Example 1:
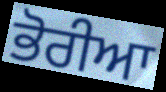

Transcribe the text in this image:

ਭੋਰੀਆ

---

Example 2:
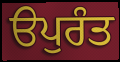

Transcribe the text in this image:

ੳਪੁਰੰਤ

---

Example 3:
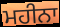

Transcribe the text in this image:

ਮਹੀਨਾ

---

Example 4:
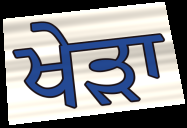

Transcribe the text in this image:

ਖੇੜਾ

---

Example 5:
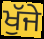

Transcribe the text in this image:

ਖੁੱਜੇ